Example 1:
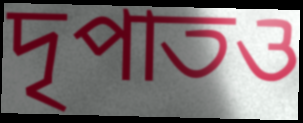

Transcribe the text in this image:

দৃপাতও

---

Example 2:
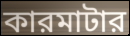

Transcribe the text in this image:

কারমাটার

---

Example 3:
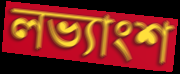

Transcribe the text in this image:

লভ্যাংশ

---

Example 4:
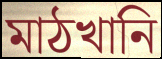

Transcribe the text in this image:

মাঠখানি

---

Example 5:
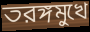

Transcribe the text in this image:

তরঙ্গমুখে